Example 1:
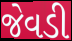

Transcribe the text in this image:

જેવડી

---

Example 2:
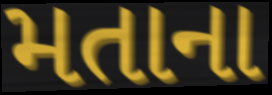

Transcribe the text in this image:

મતાના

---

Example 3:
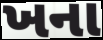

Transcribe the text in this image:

ખના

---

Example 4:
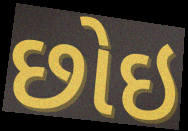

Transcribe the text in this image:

છોઇ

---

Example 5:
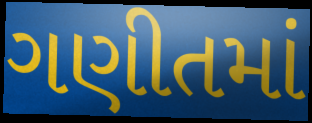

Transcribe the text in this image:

ગણીતમાં